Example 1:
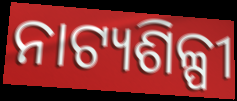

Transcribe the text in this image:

ନାଟ୍ୟଶିଳ୍ପୀ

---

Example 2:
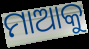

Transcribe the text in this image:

ମାଆକୁ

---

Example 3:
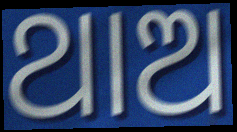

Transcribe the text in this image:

ଥାଅ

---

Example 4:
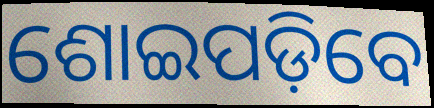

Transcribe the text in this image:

ଶୋଇପଡ଼ିବେ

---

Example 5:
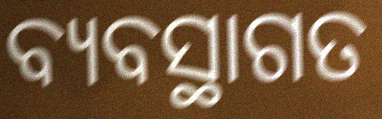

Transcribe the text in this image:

ବ୍ଯବସ୍ଥାଗତ